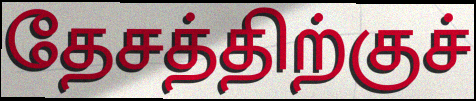
தேசத்திற்குச்